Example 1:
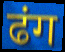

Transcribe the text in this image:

ढंग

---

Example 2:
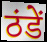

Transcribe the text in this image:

ठंडें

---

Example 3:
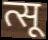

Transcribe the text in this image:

त्सू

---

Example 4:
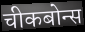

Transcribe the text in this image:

चीकबोन्स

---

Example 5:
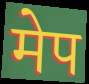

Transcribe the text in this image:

मेप